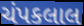
ચંપકલાલ